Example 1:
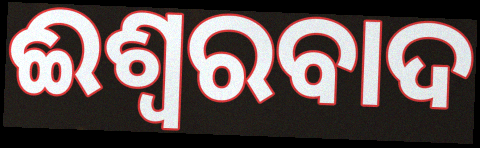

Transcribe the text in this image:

ଈଶ୍ବରବାଦ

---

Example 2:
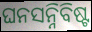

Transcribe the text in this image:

ଘନସନ୍ନିବିଷ୍ଟ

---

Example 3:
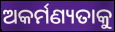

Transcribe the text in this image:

ଅକର୍ମଣ୍ୟତାକୁ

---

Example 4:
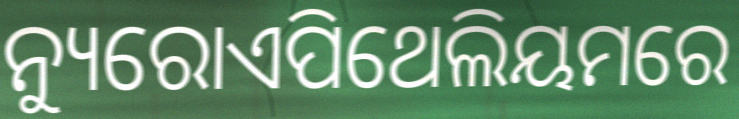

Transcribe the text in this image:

ନ୍ୟୁରୋଏପିଥେଲିୟମରେ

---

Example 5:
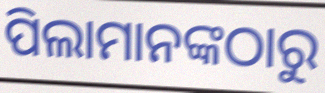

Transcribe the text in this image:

ପିଲାମାନଙ୍କଠାରୁ